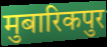
मुबारिकपुर